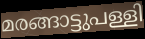
മരങ്ങാട്ടുപള്ളി